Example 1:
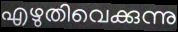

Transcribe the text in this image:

എഴുതിവെക്കുന്നു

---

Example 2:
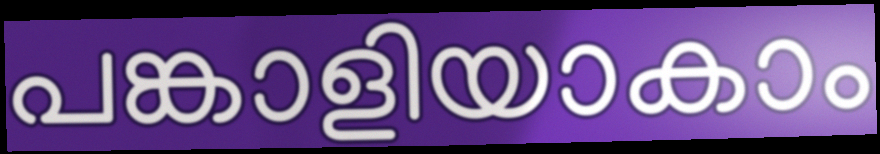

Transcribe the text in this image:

പങ്കാളിയാകാം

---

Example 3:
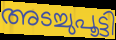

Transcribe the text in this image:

അടച്ചുപൂട്ടി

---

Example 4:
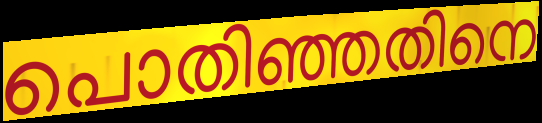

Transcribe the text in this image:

പൊതിഞ്ഞതിനെ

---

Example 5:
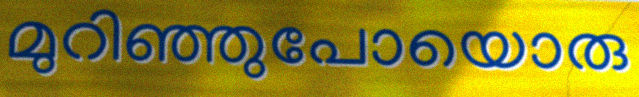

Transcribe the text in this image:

മുറിഞ്ഞുപോയൊരു